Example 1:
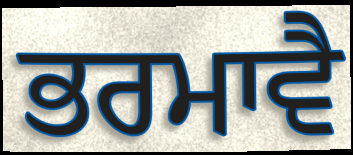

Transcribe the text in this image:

ਭਰਮਾਵੈ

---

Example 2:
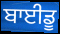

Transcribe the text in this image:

ਬਾਈਡੂ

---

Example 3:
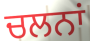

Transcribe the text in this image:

ਚਲਨਾਂ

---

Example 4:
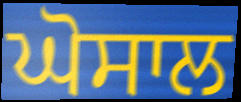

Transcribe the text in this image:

ਘੋਸਾਲ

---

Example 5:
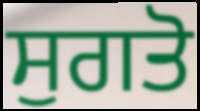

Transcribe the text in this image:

ਸੁਗਤੋ